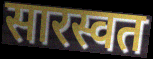
सारस्वत